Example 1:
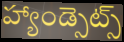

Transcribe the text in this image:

హ్యాండ్సెట్స్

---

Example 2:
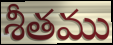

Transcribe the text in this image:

శీతము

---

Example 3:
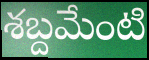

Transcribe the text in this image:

శబ్దమేంటి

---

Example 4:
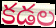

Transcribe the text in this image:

కడల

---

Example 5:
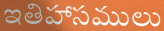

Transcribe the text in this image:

ఇతిహాసములు